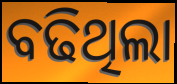
ବଢିଥିଲା